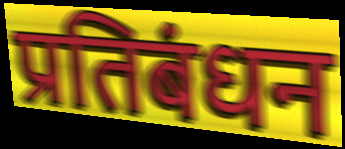
प्रतिबंधन